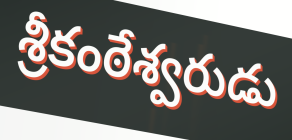
శ్రీకంఠేశ్వరుడు